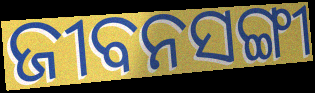
ଜୀବନସଙ୍ଗୀ